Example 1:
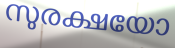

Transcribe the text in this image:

സുരക്ഷയോ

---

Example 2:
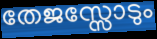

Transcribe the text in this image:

തേജസ്സോടും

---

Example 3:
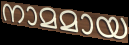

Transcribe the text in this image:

നാമമായ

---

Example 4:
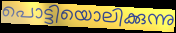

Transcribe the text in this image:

പൊട്ടിയൊലിക്കുന്നു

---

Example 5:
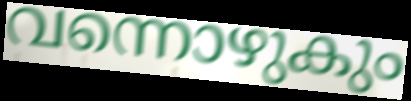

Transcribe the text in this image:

വന്നൊഴുകും